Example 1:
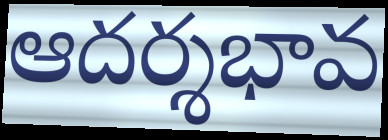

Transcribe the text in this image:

ఆదర్శభావ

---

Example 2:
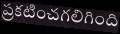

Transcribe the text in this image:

ప్రకటించగలిగింది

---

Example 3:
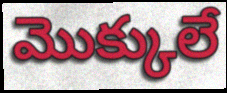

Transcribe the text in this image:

మొక్కులే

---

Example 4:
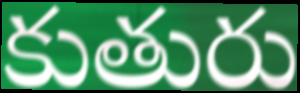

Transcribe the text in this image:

కుతురు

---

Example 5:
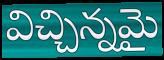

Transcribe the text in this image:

విచ్చిన్నమై